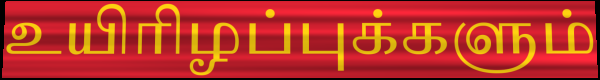
உயிரிழப்புக்களும்